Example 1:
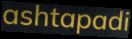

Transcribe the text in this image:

ashtapadi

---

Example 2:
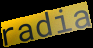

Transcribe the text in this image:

radia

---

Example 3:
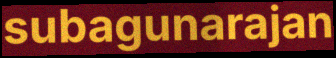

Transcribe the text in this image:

subagunarajan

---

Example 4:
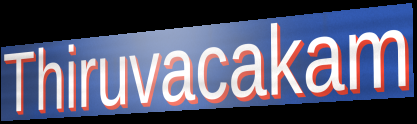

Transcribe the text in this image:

Thiruvacakam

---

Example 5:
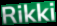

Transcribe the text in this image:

Rikki